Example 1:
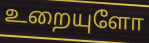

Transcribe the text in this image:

உறையுளோ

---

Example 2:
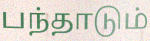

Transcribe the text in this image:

பந்தாடும்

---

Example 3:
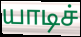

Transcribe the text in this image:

யாடிச்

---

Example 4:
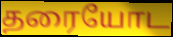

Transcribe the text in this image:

தரையோட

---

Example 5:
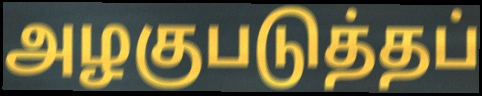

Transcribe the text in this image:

அழகுபடுத்தப்